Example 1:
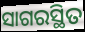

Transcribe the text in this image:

ସାଗରସ୍ଥିତ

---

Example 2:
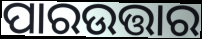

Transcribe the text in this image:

ପାରଉତ୍ତାର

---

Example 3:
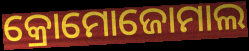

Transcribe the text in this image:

କ୍ରୋମୋଜୋମାଲ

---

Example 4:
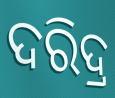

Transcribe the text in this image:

ଦରିଦ୍ର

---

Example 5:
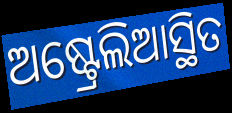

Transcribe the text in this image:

ଅଷ୍ଟ୍ରେଲିଆସ୍ଥିତ